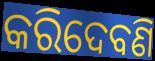
କରିଦେବଣି